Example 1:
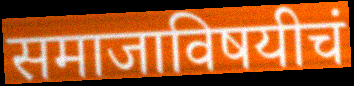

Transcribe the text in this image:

समाजाविषयीचं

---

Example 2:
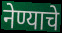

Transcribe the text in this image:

नेण्याचे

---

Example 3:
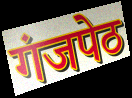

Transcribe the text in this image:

गंजपेठ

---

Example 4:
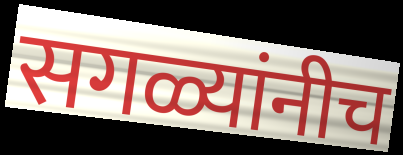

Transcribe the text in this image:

सगळ्यांनीच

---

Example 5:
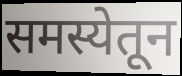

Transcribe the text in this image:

समस्येतून